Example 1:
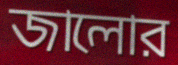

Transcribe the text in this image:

জালোর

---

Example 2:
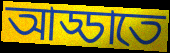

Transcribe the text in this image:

আড্ডাতে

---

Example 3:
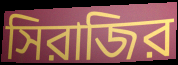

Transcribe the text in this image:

সিরাজির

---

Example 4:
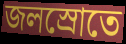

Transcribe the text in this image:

জলস্রোতে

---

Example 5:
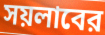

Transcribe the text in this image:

সয়লাবের